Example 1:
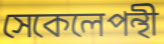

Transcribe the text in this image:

সেকেলেপন্থী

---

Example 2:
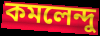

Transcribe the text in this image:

কমলেন্দু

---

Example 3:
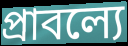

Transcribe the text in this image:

প্রাবল্যে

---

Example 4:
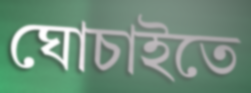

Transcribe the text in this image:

ঘোচাইতে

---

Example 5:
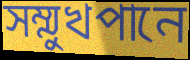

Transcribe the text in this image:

সম্মুখপানে